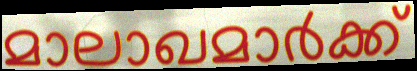
മാലാഖമാർക്ക്